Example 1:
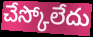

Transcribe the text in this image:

చేస్కోలేదు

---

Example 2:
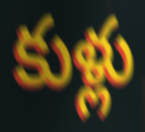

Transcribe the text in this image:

కుళ్లు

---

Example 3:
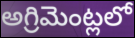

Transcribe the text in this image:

అగ్రిమెంట్లలో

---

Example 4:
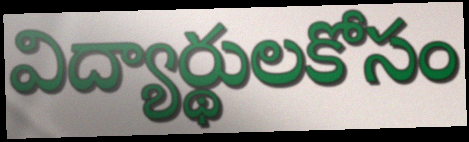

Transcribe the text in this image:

విద్యార్థులకోసం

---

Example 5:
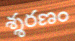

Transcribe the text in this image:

శ్శరణం